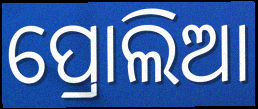
ପ୍ରୋଲିଆ